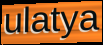
ulatya